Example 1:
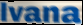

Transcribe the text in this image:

Ivana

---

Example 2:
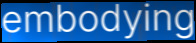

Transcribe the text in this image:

embodying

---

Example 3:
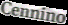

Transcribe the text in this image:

Cennino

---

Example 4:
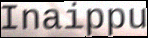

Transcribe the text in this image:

Inaippu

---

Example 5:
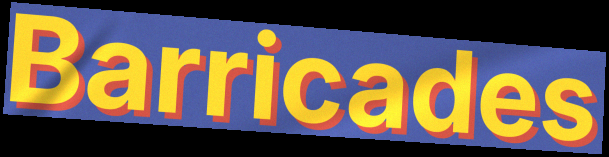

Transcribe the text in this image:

Barricades